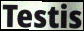
Testis